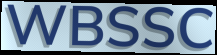
WBSSC